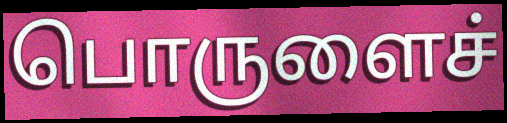
பொருளைச்